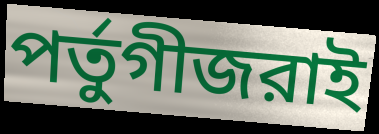
পর্তুগীজরাই